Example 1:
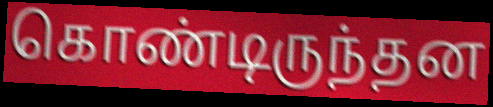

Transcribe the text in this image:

கொண்டிருந்தன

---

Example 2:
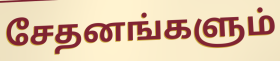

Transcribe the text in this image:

சேதனங்களும்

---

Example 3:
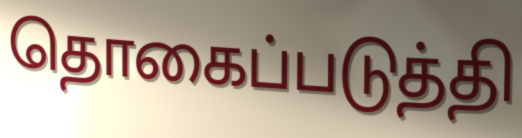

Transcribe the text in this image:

தொகைப்படுத்தி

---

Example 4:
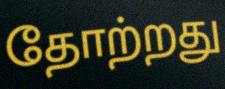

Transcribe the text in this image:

தோற்றது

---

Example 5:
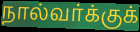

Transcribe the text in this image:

நால்வர்க்குக்